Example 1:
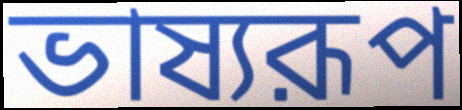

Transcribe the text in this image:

ভাষ্যরূপ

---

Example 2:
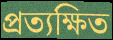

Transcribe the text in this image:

প্রত্যক্ষিত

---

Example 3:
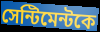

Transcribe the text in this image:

সেন্টিমেন্টকে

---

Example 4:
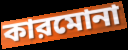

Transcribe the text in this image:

কারমোনা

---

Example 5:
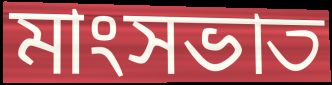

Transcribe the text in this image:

মাংসভাত